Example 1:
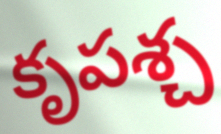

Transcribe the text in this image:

కృపశ్చ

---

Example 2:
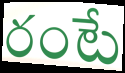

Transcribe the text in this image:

రంటే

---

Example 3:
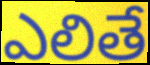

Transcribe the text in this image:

ఎలితే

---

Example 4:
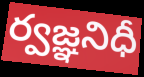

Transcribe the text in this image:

ర్వజ్ఞనిధీ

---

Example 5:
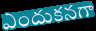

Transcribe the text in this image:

ఎందుకనగా